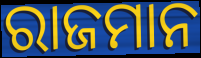
ରାଜମାନ